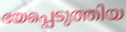
ഭയപ്പെടുത്തിയ